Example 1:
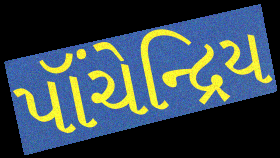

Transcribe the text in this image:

પૉંચેન્દ્રિય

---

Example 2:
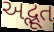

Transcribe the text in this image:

અદ્ભૂત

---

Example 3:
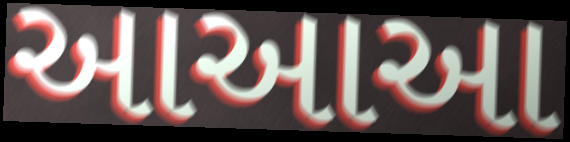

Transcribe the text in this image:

આઆઆ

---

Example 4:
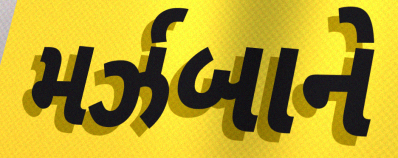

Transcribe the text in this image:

મર્ઝબાને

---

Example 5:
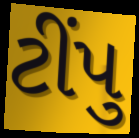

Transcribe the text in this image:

ટીંપુ